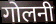
गोलनी